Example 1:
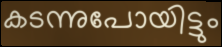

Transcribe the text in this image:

കടന്നുപോയിട്ടും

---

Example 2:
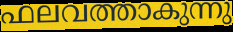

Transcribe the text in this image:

ഫലവത്താകുന്നു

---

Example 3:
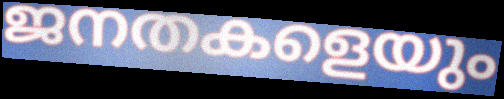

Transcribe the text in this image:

ജനതകളെയും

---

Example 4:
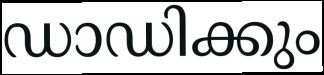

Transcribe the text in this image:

ഡാഡിക്കും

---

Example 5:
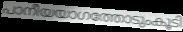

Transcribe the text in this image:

പാനീയയാഗത്തോടുംകൂടി